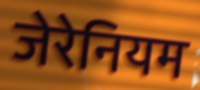
जेरेनियम